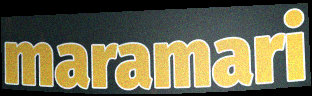
maramari